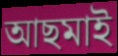
আছমাই